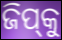
ଜିପ୍‍କୁ